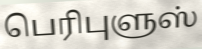
பெரிபுளுஸ்